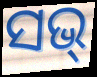
ସଭ୍